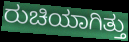
ರುಚಿಯಾಗಿತ್ತು